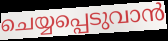
ചെയ്യപ്പെടുവാൻ